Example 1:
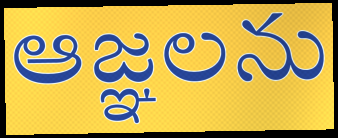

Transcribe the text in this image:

ఆజ్ఞలను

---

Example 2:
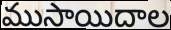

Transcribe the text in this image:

ముసాయిదాల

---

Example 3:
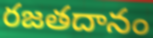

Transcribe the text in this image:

రజతదానం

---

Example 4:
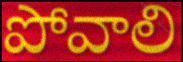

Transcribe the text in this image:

పోవాలి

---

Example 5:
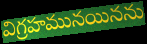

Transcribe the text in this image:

విగ్రహమునయినను